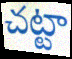
చట్టా